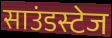
साउंडस्टेज